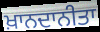
ਖ਼ਾਨਦਾਨੀਤਾ